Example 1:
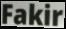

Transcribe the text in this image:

Fakir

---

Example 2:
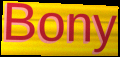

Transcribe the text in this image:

Bony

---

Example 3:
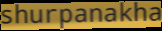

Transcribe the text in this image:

shurpanakha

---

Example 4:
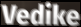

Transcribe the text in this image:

Vedike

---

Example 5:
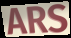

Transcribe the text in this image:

ARS